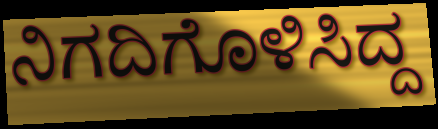
ನಿಗದಿಗೊಳಿಸಿದ್ದ